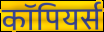
कॉपियर्स